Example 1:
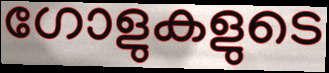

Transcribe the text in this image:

ഗോളുകളുടെ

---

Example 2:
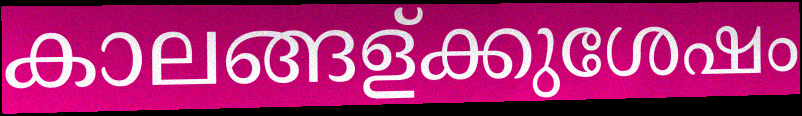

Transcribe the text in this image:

കാലങ്ങള്ക്കുശേഷം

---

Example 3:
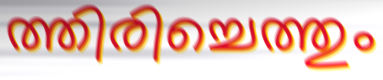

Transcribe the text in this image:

ത്തിരിച്ചെത്തും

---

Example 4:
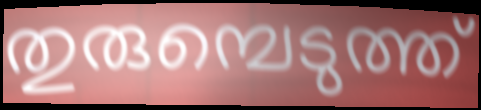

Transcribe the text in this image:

തുരുമ്പെടുത്ത്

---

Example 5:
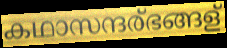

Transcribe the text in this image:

കഥാസന്ദര്ഭങ്ങള്